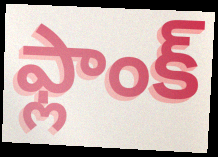
ఫ్లాంక్